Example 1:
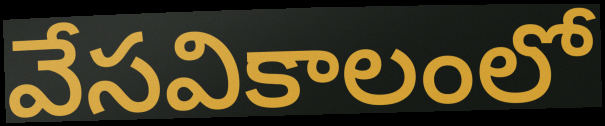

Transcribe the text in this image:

వేసవికాలంలో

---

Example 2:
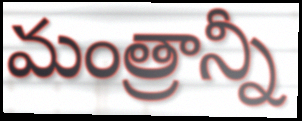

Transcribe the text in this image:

మంత్రాన్నీ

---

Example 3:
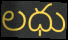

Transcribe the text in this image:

లధు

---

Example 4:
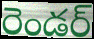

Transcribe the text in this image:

రెండర్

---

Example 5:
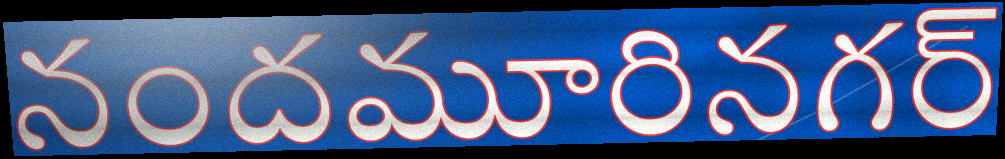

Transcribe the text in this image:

నందమూరినగర్